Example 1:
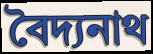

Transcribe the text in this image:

বৈদ্যনাথ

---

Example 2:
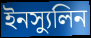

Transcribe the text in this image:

ইনস্যুলিন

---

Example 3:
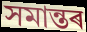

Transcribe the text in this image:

সমান্তৰ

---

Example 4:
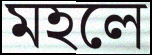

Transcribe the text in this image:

মহলে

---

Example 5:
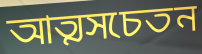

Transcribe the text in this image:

আত্মসচেতন